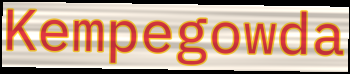
Kempegowda